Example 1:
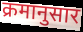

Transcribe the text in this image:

क्रमानुसार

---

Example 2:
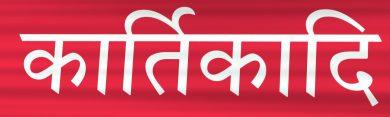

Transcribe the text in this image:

कार्तिकादि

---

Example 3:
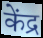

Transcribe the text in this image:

केंद्र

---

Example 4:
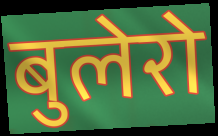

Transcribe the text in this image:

बुलेरो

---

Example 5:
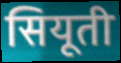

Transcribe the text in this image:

सियूती